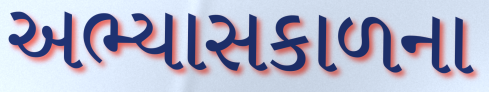
અભ્યાસકાળના